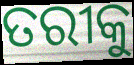
ତରୀକୁ